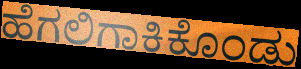
ಹೆಗಲಿಗಾಕಿಕೊಂಡು